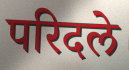
परिदले